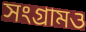
সংগ্রামও